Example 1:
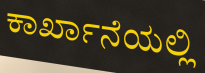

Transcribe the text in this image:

ಕಾರ್ಖಾನೆಯಲ್ಲಿ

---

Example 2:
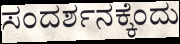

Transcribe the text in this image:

ಸಂದರ್ಶನಕ್ಕೆಂದು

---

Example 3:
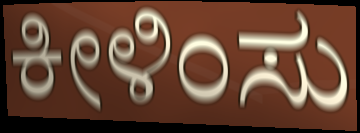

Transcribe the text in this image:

ಕೀಳಿಂಸು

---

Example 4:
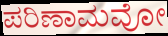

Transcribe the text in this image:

ಪರಿಣಾಮವೋ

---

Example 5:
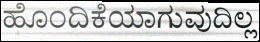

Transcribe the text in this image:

ಹೊಂದಿಕೆಯಾಗುವುದಿಲ್ಲ